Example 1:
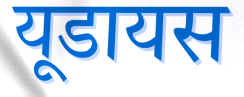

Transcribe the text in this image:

यूडायस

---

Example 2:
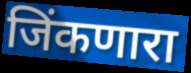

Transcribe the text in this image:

जिंकणारा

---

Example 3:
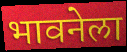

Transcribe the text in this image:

भावनेला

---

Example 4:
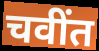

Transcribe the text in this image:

चवींत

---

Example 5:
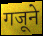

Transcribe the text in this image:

गजूने